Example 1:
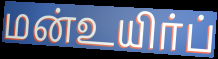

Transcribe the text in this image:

மன்உயிர்ப்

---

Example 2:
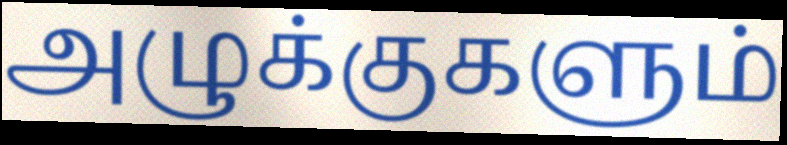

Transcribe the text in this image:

அழுக்குகளும்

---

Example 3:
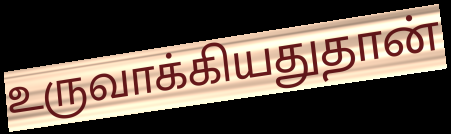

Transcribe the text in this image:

உருவாக்கியதுதான்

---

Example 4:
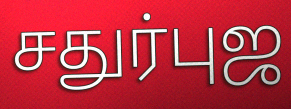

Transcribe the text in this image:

சதுர்புஜ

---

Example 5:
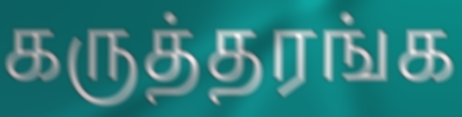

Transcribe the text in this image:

கருத்தரங்க